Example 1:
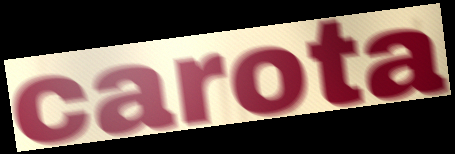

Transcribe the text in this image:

carota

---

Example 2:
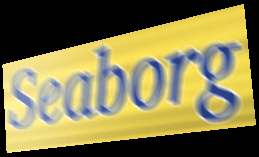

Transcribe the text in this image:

Seaborg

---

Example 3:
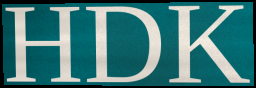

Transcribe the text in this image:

HDK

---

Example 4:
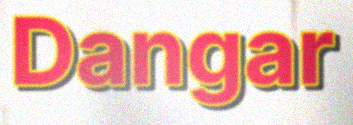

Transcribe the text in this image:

Dangar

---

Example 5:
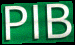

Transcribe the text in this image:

PIB